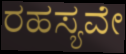
ರಹಸ್ಯವೇ